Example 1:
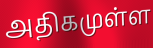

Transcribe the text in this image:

அதிகமுள்ள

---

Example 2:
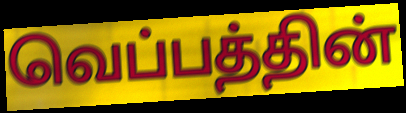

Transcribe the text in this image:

வெப்பத்தின்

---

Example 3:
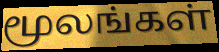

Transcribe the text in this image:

மூலங்கள்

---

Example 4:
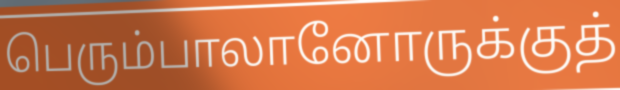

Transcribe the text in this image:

பெரும்பாலானோருக்குத்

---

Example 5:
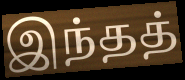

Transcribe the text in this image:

இந்தத்